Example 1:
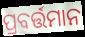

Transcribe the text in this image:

ପ୍ରବର୍ତ୍ତମାନ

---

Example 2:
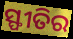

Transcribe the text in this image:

ସ୍ଫୀତିର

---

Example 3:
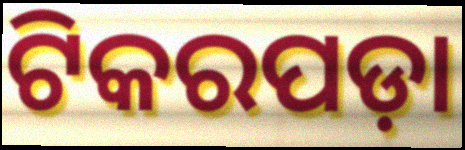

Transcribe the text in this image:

ଟିକରପଡ଼ା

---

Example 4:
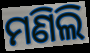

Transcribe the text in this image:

ମଣିଲି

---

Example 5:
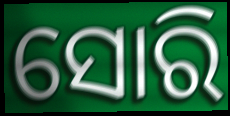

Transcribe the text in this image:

ସୋରି